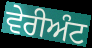
ਵੇਰੀਅੰਟ